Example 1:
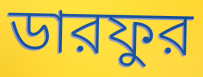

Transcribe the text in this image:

ডারফুর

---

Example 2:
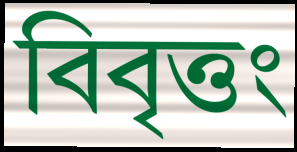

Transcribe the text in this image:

বিবৃত্তং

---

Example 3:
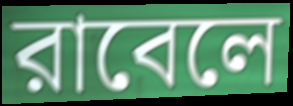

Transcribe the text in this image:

রাবেলে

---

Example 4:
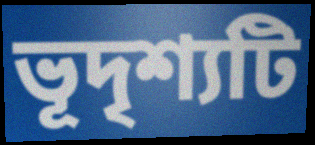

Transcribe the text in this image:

ভূদৃশ্যটি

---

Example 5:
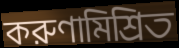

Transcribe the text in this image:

করুণামিশ্রিত